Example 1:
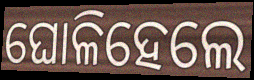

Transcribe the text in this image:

ଘୋଳିହେଲେ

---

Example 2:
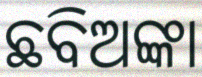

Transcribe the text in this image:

ଛବିଅଙ୍କା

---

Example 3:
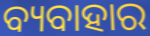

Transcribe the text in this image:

ବ୍ୟବାହାର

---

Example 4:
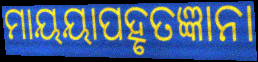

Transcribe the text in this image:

ମାୟୟାପହୃତଜ୍ଞାନା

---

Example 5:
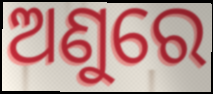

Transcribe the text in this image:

ଅଣୁରେ